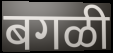
बगळी